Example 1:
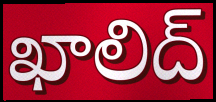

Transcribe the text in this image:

ఖాలిద్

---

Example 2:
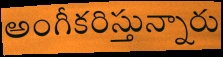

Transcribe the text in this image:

అంగీకరిస్తున్నారు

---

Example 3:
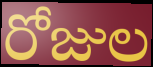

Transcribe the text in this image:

రోజుల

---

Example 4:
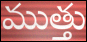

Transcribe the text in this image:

ముత్తు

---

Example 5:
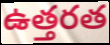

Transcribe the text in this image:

ఉత్తరత